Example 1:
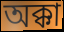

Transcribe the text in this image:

অক্কা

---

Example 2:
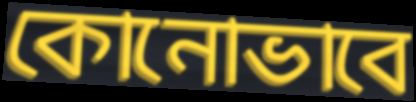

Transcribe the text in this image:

কোনোভাবে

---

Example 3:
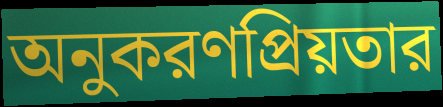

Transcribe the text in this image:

অনুকরণপ্রিয়তার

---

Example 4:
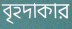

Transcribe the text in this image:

বৃহদাকার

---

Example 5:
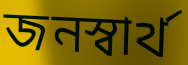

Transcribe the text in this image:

জনস্বার্থ